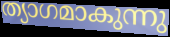
ത്യാഗമാകുന്നു